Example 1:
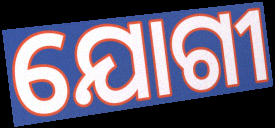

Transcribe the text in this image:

ଯୋଗୀ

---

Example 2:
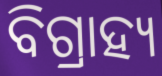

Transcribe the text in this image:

ବିଗ୍ରାହ୍ୟ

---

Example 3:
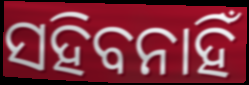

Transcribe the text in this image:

ସହିବନାହିଁ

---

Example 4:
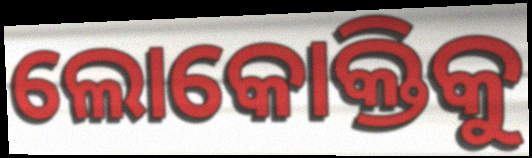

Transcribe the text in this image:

ଲୋକୋକ୍ତିକୁ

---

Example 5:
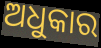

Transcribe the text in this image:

ଅଧୁକାର